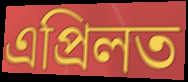
এপ্ৰিলত